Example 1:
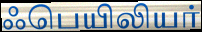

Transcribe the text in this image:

ஃபெயிலியர்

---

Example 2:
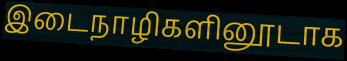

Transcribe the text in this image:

இடைநாழிகளினூடாக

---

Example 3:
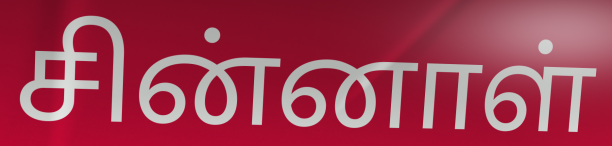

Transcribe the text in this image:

சின்னாள்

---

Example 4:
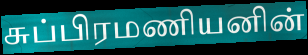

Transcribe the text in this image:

சுப்பிரமணியனின்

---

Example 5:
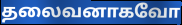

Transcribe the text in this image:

தலைவனாகவோ